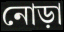
নোড়া